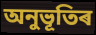
অনুভূতিৰ